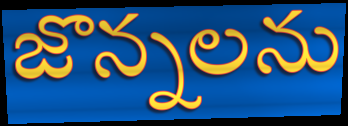
జొన్నలను